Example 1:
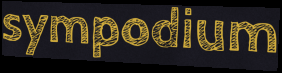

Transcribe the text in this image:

sympodium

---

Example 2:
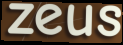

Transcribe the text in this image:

zeus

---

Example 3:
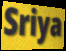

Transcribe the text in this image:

Sriya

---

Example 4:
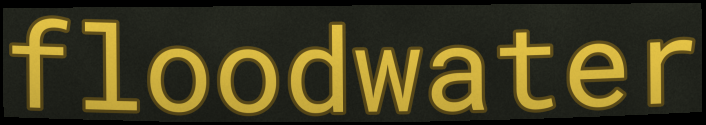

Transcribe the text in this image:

floodwater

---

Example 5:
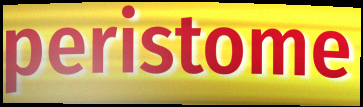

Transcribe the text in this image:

peristome